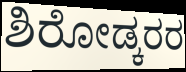
ಶಿರೋಡ್ಕರರ